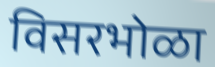
विसरभोळा